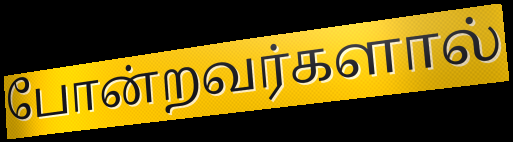
போன்றவர்களால்